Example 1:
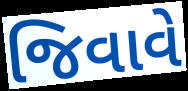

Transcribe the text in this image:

જિવાવે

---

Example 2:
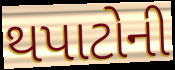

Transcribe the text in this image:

થપાટોની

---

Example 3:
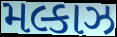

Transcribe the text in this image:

મલ્કાઝ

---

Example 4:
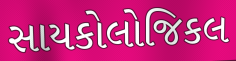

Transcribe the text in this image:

સાયકોલોજિકલ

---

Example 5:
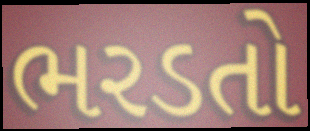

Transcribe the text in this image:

ભરડતો